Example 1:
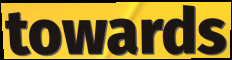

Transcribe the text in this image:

towards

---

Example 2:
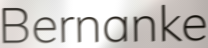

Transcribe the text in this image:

Bernanke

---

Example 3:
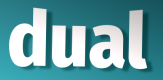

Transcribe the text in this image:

dual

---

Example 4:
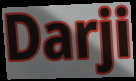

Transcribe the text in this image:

Darji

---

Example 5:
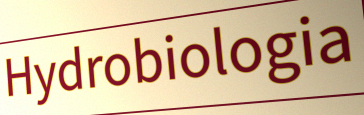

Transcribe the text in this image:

Hydrobiologia